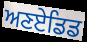
ਅਣਏਡਿਡ